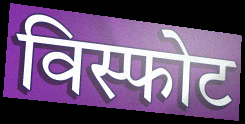
विस्फोट